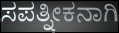
ಸಪತ್ನೀಕನಾಗಿ